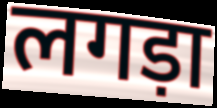
लगड़ा